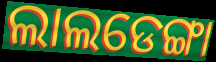
ଲାଲଡେଙ୍ଗା